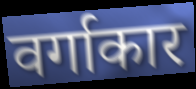
वर्गाकार